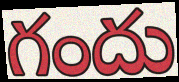
గందు